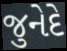
જુનેદે